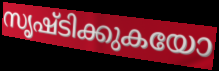
സൃഷ്ടിക്കുകയോ